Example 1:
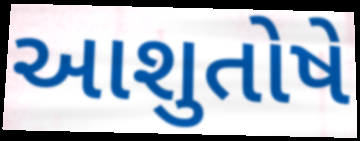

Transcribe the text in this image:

આશુતોષે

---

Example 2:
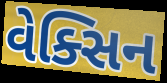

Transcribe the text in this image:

વેક્સિન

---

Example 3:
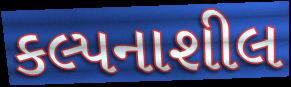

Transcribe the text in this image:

કલ્પનાશીલ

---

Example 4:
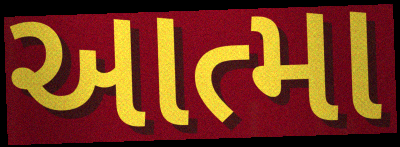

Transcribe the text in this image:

આત્મા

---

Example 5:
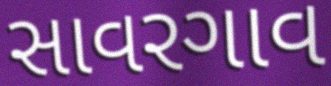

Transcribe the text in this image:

સાવરગાવ